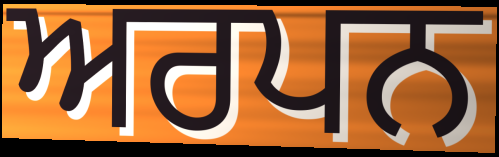
ਅਰਪਨ